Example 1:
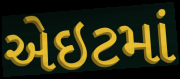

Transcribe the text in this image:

એઇટમાં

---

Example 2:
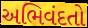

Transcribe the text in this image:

અભિવંદતો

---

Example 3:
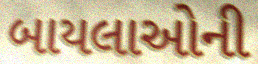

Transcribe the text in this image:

બાયલાઓની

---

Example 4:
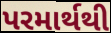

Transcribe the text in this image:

પરમાર્થથી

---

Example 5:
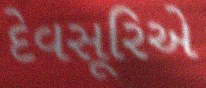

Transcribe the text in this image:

દેવસૂરિએ